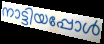
നാട്ടിയപ്പോൾ